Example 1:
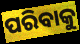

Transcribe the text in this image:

ପରିବାକୁ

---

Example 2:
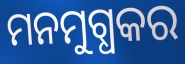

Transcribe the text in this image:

ମନମୁଗ୍ଧକର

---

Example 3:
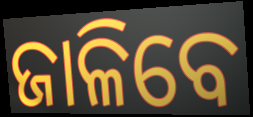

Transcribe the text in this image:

ଜାଳିବେ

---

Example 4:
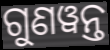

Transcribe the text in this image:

ଗୁଣୱନ୍ତ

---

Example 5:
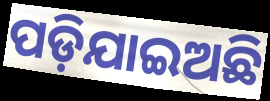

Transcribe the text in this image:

ପଡ଼ିଯାଇଅଛି